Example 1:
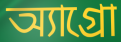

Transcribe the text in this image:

অ্যাগ্রো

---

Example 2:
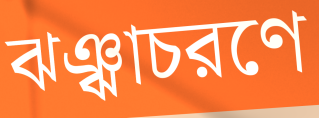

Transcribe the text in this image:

ঝঞ্ঝাচরণে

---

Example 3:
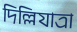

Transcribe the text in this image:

দিল্লিযাত্রা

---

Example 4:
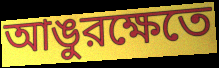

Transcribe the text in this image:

আঙুরক্ষেতে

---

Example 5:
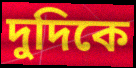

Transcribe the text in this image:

দুদিকে